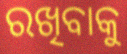
ରଖିବାକୁ